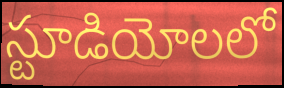
స్టూడియోలలో